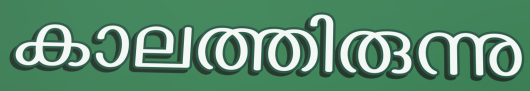
കാലത്തിരുന്നു